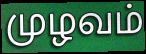
முழவம்